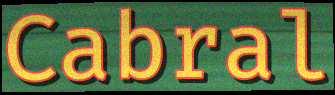
Cabral